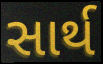
સાર્થ